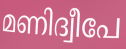
മണിദ്വീപേ